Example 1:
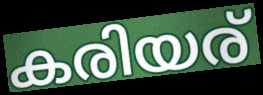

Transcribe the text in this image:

കരിയര്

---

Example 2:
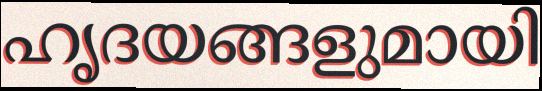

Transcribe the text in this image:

ഹൃദയങ്ങളുമായി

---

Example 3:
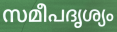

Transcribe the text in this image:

സമീപദൃശ്യം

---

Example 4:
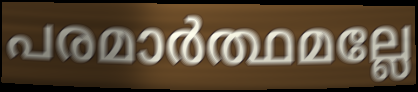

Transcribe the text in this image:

പരമാർത്ഥമല്ലേ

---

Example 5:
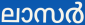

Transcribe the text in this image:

ലാസർ